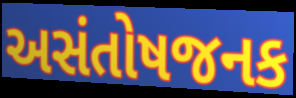
અસંતોષજનક